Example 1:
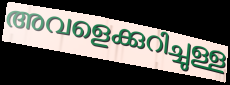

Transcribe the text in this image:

അവളെക്കുറിച്ചുള്ള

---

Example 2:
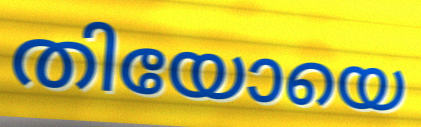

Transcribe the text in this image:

തിയോയെ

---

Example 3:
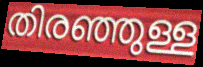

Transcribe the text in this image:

തിരഞ്ഞുള്ള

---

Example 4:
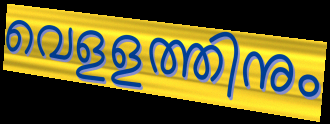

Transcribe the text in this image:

വെളളത്തിനും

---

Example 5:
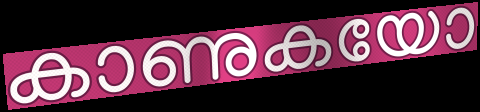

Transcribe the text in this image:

കാണുകയോ